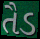
તૈડ